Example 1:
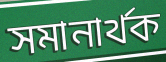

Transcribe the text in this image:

সমানার্থক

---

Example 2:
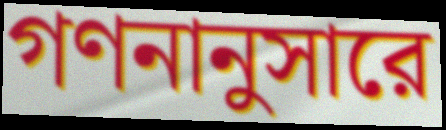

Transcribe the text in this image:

গণনানুসারে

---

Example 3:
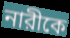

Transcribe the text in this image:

নারীকে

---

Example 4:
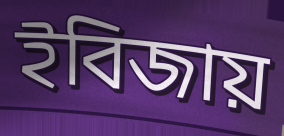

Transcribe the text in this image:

ইবিজায়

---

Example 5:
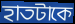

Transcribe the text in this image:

হাতটাকে